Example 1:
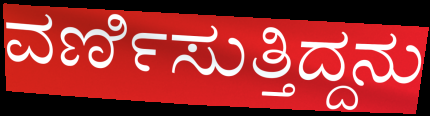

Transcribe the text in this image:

ವರ್ಣಿಸುತ್ತಿದ್ದನು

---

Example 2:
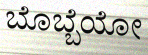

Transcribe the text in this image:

ಬೊಬ್ಬೆಯೋ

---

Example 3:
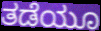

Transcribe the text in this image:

ತಡೆಯೂ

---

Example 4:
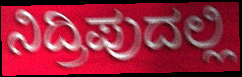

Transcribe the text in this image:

ನಿದ್ರಿಪುದಲ್ಲಿ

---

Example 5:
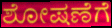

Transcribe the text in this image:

ಶೋಷಣೆಗೆ